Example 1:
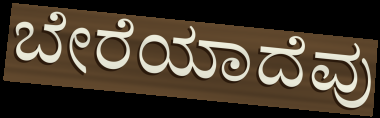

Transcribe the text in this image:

ಬೇರೆಯಾದೆವು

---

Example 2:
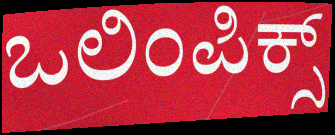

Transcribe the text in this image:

ಒಲಿಂಪಿಕ್ಸ್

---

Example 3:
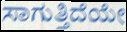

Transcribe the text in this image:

ಸಾಗುತ್ತಿದೆಯೇ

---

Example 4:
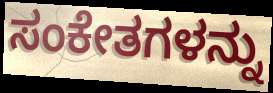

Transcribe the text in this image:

ಸಂಕೇತಗಳನ್ನು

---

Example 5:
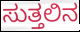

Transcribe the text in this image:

ಸುತ್ತಲಿನ